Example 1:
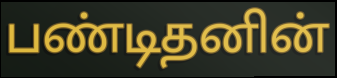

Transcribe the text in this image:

பண்டிதனின்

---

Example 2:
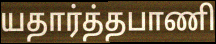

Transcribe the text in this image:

யதார்த்தபாணி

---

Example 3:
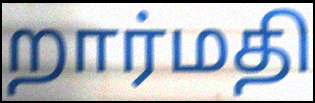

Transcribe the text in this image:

றார்மதி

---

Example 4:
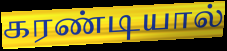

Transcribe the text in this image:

கரண்டியால்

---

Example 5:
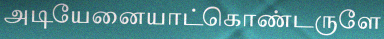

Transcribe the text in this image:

அடியேனையாட்கொண்டருளே